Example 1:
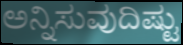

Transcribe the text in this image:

ಅನ್ನಿಸುವುದಿಷ್ಟು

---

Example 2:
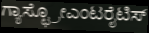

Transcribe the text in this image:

ಗ್ಯಾಸ್ಟ್ರೋಎಂಟರೈಟಿಸ್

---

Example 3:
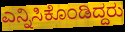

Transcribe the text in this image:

ಎನ್ನಿಸಿಕೊಂಡಿದ್ದರು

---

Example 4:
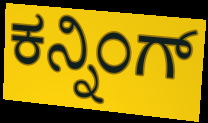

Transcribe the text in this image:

ಕನ್ನಿಂಗ್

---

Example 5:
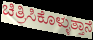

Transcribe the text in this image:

ಚಿತ್ರಿಸಿಕೊಳ್ಳುತ್ತಾನೆ